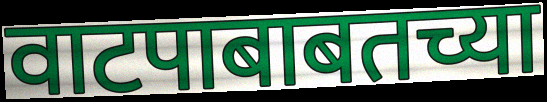
वाटपाबाबतच्या